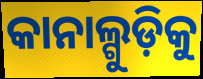
କାନାଲ୍ଗୁଡ଼ିକୁ